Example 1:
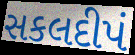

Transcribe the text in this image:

સકલદીપં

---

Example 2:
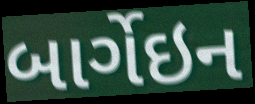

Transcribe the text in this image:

બાર્ગેઇન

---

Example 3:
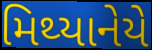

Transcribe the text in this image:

મિથ્યાનેયે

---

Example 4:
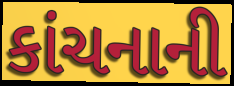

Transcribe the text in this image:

કાંચનાની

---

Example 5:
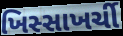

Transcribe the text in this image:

ખિસ્સાખર્ચી